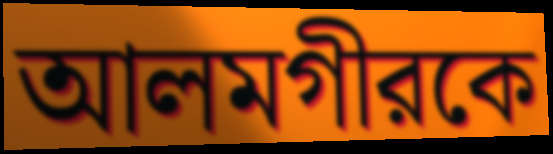
আলমগীরকে